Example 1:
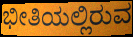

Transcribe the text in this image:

ಭೀತಿಯಲ್ಲಿರುವ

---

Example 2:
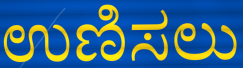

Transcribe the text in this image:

ಉಣಿಸಲು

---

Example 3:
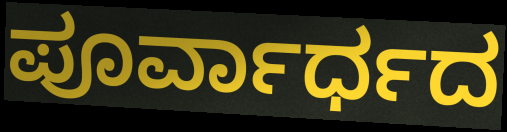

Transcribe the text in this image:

ಪೂರ್ವಾರ್ಧದ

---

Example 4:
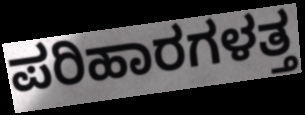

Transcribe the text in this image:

ಪರಿಹಾರಗಳತ್ತ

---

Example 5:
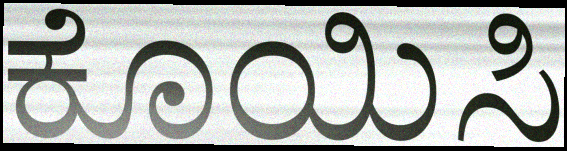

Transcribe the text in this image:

ಕೊಯಿಸಿ